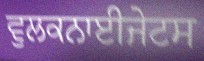
ਵੁਲਕਨਾਈਜੇਟਸ